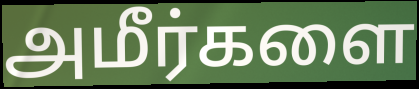
அமீர்களை